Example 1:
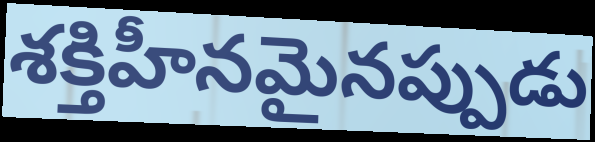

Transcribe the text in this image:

శక్తిహీనమైనప్పుడు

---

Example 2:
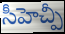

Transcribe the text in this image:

సీహెచ్పీ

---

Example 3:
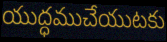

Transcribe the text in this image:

యుద్ధముచేయుటకు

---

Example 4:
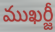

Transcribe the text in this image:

ముఖర్జీ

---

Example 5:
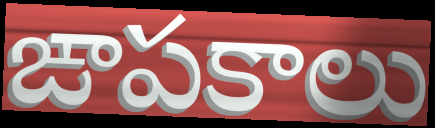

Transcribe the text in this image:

ఙాపకాలు